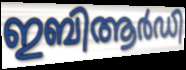
ഇബിആർഡി